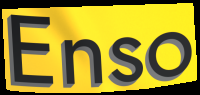
Enso